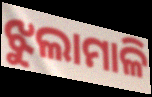
ଝୁଲାମାଳି